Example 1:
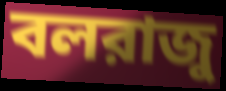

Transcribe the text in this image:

বলরাজু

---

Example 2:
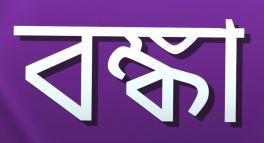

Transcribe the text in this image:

বঙ্কা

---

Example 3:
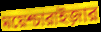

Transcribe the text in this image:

ময়েশ্চারাইজ়ার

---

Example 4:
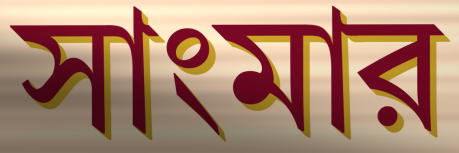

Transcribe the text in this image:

সাংমার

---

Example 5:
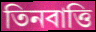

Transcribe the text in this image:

তিনবাত্তি